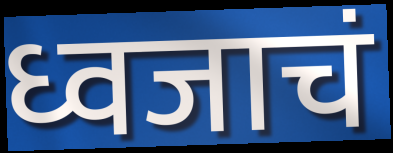
ध्वजाचं